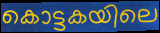
കൊട്ടകയിലെ